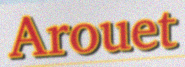
Arouet